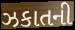
ઝકાતની